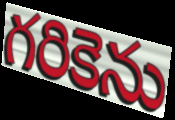
గరికెను